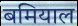
बमियाल